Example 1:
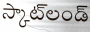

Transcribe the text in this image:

స్కాట్‌లండ్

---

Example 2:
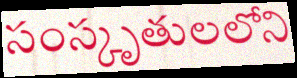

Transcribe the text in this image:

సంస్కృతులలోని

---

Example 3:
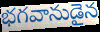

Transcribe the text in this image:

భగవానుడైన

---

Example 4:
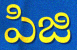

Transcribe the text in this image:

పిజి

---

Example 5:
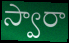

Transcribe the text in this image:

స్వారా